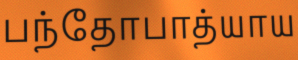
பந்தோபாத்யாய